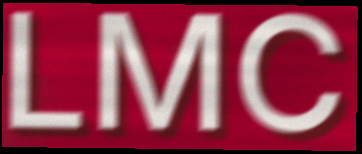
LMC